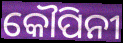
କୌପିନୀ